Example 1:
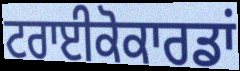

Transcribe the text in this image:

ਟਰਾਈਕੋਕਾਰਡਾਂ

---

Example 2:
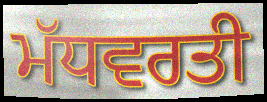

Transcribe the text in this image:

ਮੱਧਵਰਤੀ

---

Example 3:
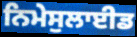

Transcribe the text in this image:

ਨਿਮੇਸੁਲਾਈਡ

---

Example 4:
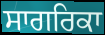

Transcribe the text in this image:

ਸਾਗਰਿਕਾ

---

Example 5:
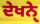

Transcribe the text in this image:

ਦੇਖਨੑੇ